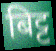
बिट्ट